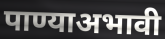
पाण्याअभावी